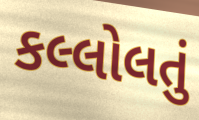
કલ્લોલતું